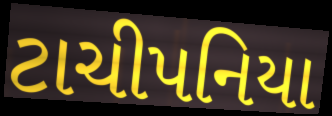
ટાચીપનિયા